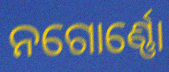
ନଗୋର୍ଣ୍ଣୋ